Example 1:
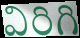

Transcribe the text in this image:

విరిగి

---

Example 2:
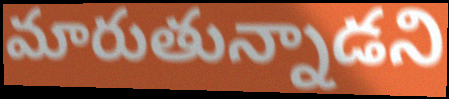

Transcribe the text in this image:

మారుతున్నాడని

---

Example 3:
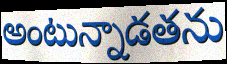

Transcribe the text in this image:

అంటున్నాడతను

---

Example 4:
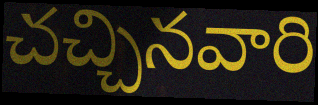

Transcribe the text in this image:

చచ్చినవారి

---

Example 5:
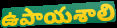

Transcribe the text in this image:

ఉపాయశాలి